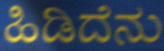
ಹಿಡಿದೆನು